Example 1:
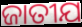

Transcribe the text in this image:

ଜାତୀଯ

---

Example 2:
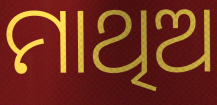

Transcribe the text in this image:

ମାଥିଅ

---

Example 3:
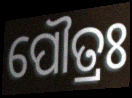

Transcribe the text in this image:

ପୌତ୍ରଃ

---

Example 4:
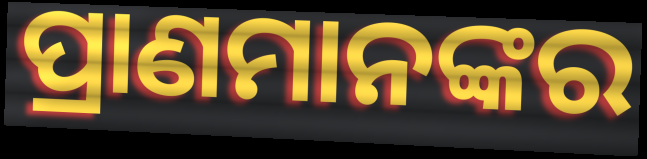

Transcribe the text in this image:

ପ୍ରାଣମାନଙ୍କର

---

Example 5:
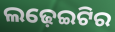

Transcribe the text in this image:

ଲଢ଼େଇଟିର